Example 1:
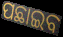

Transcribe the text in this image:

ପଛାଇବ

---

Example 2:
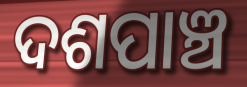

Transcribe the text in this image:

ଦଶପାଞ୍ଚ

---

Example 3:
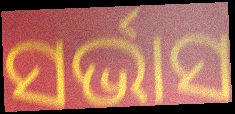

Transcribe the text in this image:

ସର୍ଭାସ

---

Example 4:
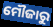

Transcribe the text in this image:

ମୌଜାରୁ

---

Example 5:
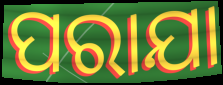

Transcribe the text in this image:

ପରାଯା